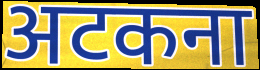
अटकना